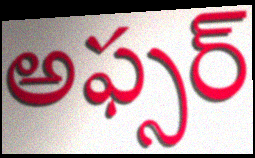
అఫ్సర్